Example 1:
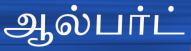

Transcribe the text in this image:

ஆல்பர்ட்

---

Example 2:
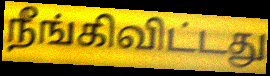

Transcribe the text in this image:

நீங்கிவிட்டது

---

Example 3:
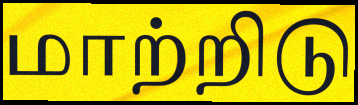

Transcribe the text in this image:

மாற்றிடு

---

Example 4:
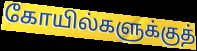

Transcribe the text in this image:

கோயில்களுக்குத்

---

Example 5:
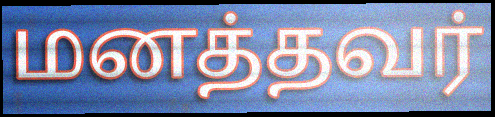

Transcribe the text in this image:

மனத்தவர்